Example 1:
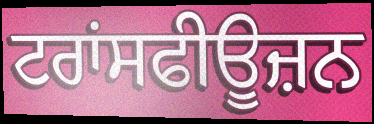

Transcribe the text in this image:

ਟਰਾਂਸਫੀਊਜ਼ਨ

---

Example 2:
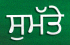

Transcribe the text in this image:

ਸੁਮੱਤੇ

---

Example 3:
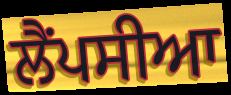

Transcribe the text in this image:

ਲੈਂਪਸੀਆ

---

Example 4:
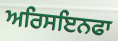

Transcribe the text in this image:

ਅਰਿਸਇਨਫਾ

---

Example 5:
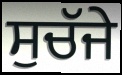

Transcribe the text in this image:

ਸੁਚੱਜੇ